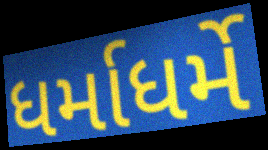
ધર્માધર્મે